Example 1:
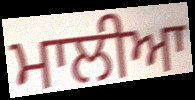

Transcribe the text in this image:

ਮਾਲੀਆ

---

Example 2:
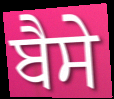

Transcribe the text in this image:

ਬੈਸੇ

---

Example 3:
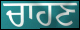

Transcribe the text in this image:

ਚਾਹਣ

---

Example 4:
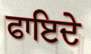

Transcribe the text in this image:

ਫਾਇਦੇ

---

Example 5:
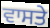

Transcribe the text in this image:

ਵਾਸਤੇ